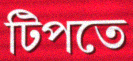
টিপতে